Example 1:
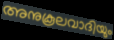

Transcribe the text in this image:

അനുകൂലവാദിയും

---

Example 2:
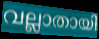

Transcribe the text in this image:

വല്ലാതായി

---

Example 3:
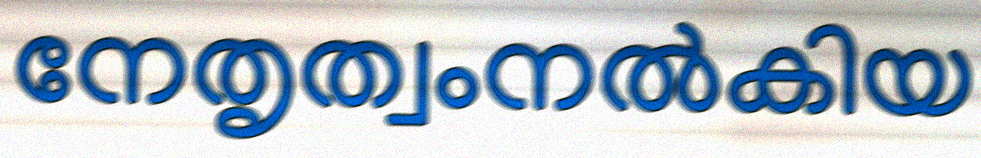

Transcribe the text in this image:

നേതൃത്വംനൽകിയ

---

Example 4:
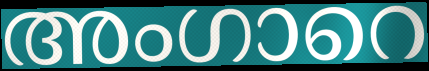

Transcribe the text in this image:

അംഗാറെ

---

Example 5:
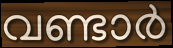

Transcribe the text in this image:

വണ്ടാർ